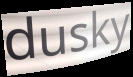
dusky